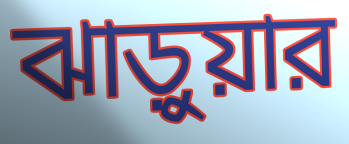
ঝাড়ুয়ার